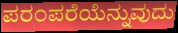
ಪರಂಪರೆಯೆನ್ನುವುದು